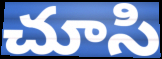
చూసి